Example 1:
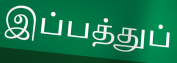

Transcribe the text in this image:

இப்பத்துப்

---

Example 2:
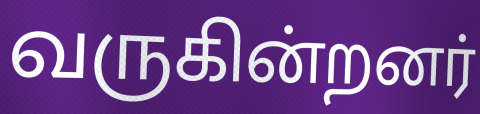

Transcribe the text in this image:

வருகின்றனர்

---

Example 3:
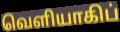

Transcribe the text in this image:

வெளியாகிப்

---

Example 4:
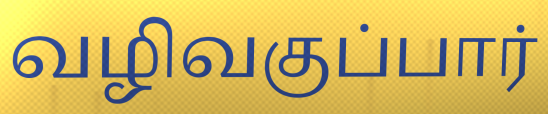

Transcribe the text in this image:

வழிவகுப்பார்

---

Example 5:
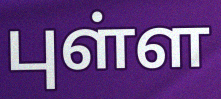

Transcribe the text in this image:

புள்ள